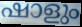
ഷാളും